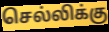
செல்லிக்கு